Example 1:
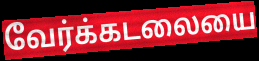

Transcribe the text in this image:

வேர்க்கடலையை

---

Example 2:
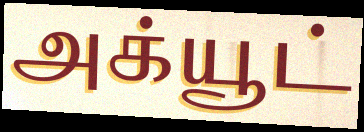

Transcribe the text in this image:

அக்யூட்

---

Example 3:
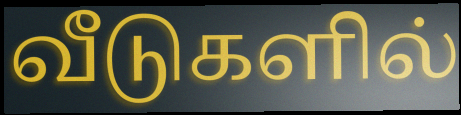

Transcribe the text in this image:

வீடுகளில்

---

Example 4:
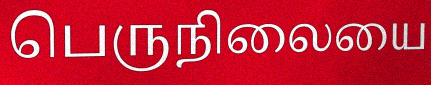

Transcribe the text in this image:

பெருநிலையை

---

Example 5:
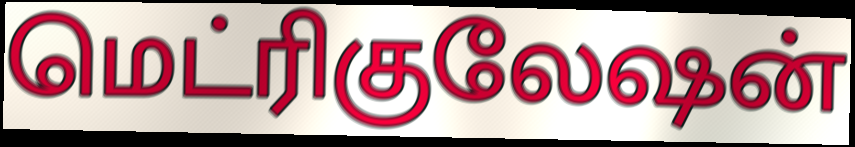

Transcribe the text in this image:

மெட்ரிகுலேஷன்